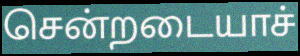
சென்றடையாச்